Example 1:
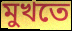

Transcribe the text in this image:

মুখতে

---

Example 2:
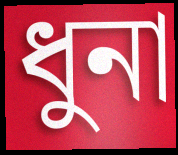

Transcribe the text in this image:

ধুনা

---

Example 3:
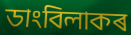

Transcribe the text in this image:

ডাংবিলাকৰ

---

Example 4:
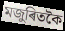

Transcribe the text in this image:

মজুৰিতকৈ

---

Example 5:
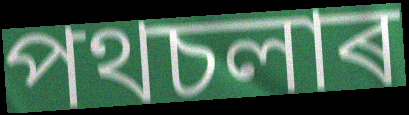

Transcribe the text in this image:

পথচলাৰ